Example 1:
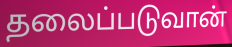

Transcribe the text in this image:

தலைப்படுவான்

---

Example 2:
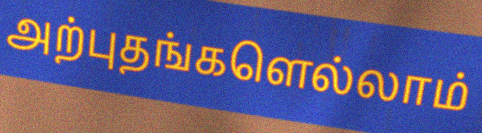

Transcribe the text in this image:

அற்புதங்களெல்லாம்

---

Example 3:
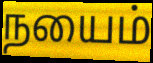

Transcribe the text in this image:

நயைம்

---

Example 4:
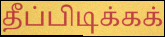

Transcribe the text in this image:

தீப்பிடிக்கக்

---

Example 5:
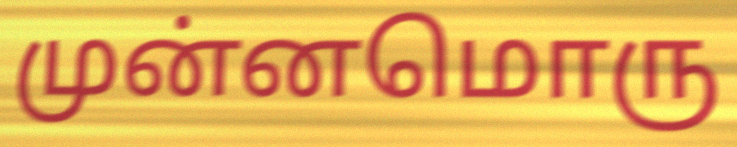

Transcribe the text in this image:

முன்னமொரு